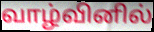
வாழ்வினில்